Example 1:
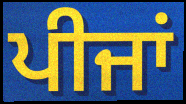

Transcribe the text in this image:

ਪੀਜਾਂ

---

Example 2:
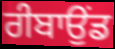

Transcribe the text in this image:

ਰੀਬਾਉਂਡ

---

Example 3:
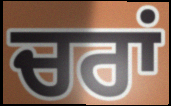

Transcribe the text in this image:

ਚਰਾਂ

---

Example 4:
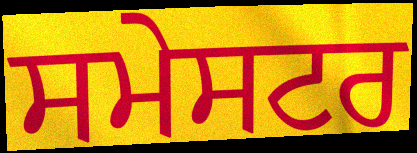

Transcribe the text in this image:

ਸਮੇਸਟਰ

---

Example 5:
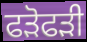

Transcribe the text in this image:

ਫੜੋਫੜੀ